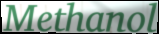
Methanol